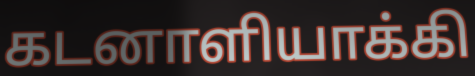
கடனாளியாக்கி